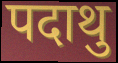
पदाथु